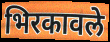
भिरकावले